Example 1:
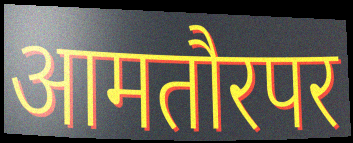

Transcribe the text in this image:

आमतौरपर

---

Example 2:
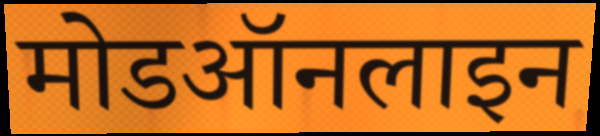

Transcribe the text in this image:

मोडऑनलाइन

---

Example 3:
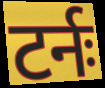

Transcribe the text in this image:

टर्नः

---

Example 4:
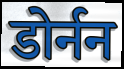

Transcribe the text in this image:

डोर्नन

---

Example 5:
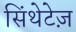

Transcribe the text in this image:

सिंथेटेज़